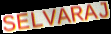
SELVARAJ